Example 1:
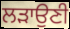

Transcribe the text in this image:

ਲੜਾਉਣੀ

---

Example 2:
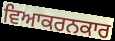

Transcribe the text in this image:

ਵਿਆਕਰਨਕਾਰ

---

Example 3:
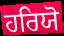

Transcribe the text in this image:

ਹਰਿਯੋ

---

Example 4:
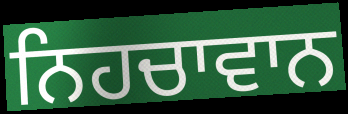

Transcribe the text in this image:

ਨਿਹਚਾਵਾਨ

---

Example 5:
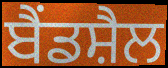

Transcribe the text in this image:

ਬੈਂਡਸ਼ੈਲ